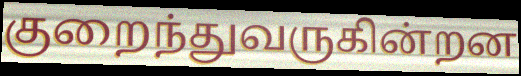
குறைந்துவருகின்றன